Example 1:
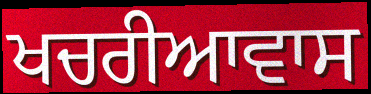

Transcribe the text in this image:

ਖਚਰੀਆਵਾਸ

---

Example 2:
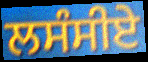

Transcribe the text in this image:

ਲਸੰਸੀਏ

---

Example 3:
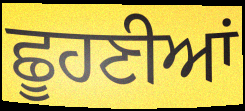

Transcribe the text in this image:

ਛੂਹਣੀਆਂ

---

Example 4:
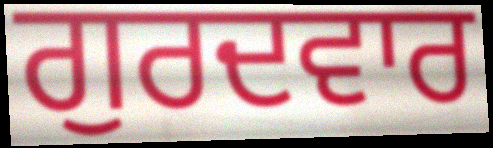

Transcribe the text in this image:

ਗੁਰਦਵਾਰ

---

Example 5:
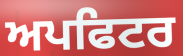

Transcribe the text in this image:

ਅਪਫਿਟਰ